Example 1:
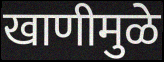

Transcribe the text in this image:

खाणीमुळे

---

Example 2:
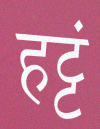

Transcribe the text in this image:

हट्टं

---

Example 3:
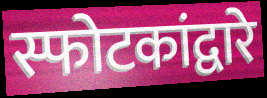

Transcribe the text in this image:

स्फोटकांद्वारे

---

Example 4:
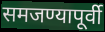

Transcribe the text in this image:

समजण्यापूर्वी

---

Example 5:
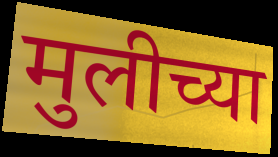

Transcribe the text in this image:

मुलीच्‍या